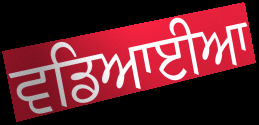
ਵਡਿਆਈਆ